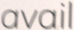
avail